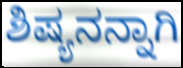
ಶಿಷ್ಯನನ್ನಾಗಿ